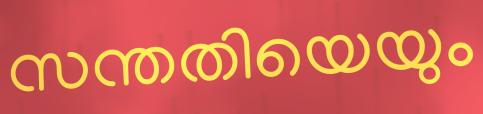
സന്തതിയെയും